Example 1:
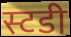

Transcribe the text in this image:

स्टडी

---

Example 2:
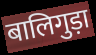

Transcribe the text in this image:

बालिगुड़ा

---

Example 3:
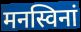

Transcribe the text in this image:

मनस्विनां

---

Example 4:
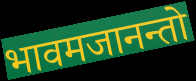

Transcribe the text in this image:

भावमजानन्तो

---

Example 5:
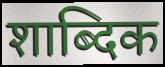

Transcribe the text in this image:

शाब्दिक